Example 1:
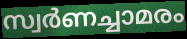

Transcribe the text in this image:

സ്വർണച്ചാമരം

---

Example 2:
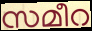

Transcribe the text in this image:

സമീറ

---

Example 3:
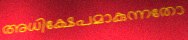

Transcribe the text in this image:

അധിക്ഷേപമാകുന്നതോ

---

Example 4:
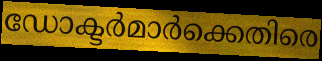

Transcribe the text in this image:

ഡോക്ടർമാർക്കെതിരെ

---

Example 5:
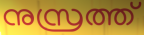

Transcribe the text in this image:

നുസ്രത്ത്